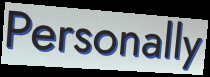
Personally